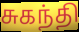
சுகந்தி